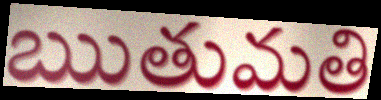
ఋతుమతి